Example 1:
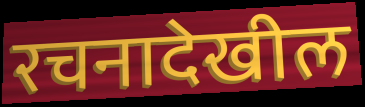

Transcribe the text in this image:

रचनादेखील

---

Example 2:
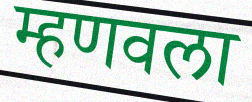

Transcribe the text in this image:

म्हणवला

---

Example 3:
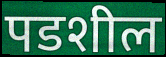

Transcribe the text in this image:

पडशील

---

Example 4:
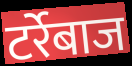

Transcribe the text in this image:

टर्रेबाज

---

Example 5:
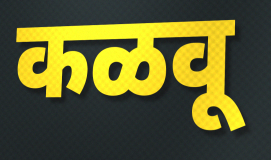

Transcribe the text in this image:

कळवू